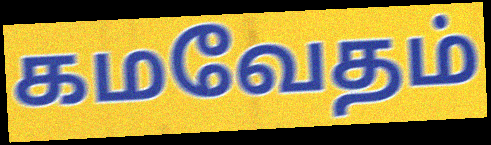
கமவேதம்